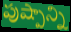
పుష్పాన్ని